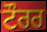
ਟੌਰਰ